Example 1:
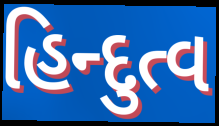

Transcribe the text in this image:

હિન્દુત્વ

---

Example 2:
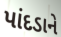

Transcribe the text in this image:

પાંદડાને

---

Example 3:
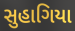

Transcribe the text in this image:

સુહાગિયા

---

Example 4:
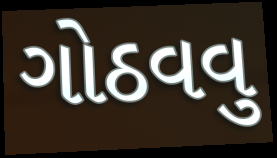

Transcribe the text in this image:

ગોઠવવુ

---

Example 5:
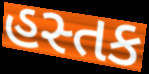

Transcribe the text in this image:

હસ્તક